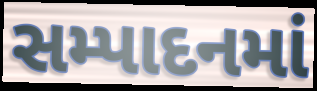
સમ્પાદનમાં